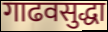
गाढवसुद्धा